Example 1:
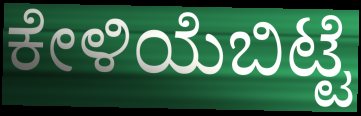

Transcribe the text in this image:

ಕೇಳಿಯೆಬಿಟ್ಟೆ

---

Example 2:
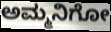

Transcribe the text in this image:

ಅಮ್ಮನಿಗೋ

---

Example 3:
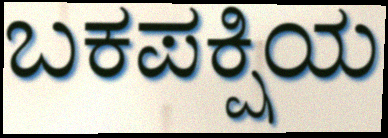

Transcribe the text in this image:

ಬಕಪಕ್ಷಿಯ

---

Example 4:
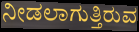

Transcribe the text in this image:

ನೀಡಲಾಗುತ್ತಿರುವ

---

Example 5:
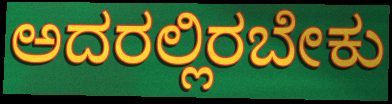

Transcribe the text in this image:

ಅದರಲ್ಲಿರಬೇಕು